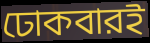
ঢোকবারই